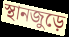
স্থানজুড়ে